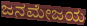
ಜನಮೇಜಯ